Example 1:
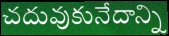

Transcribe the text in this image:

చదువుకునేదాన్ని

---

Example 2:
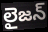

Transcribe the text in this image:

లైజన్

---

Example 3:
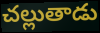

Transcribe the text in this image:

చల్లుతాడు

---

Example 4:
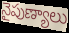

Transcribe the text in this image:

నైపుణ్యాలు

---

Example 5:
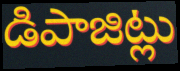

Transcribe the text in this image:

డిపాజిట్లు